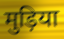
मुड़िया